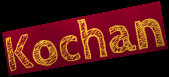
Kochan